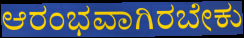
ಆರಂಭವಾಗಿರಬೇಕು